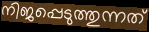
നിജപ്പെടുത്തുന്നത്